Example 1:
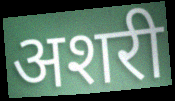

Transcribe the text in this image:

अशरी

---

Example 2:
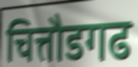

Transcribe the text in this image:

चित्तौडगढ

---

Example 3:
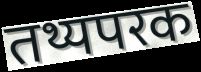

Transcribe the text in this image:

तथ्यपरक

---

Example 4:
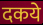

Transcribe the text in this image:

दकये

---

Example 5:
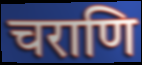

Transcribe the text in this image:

चराणि